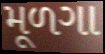
મૂળગા